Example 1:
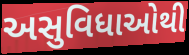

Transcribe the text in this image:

અસુવિધાઓથી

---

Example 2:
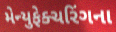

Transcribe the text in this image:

મેન્યુફેક્ચરિંગના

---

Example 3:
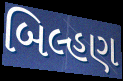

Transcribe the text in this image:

બિલ્હણ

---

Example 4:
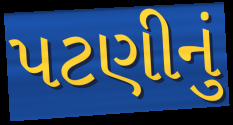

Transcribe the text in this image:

પટણીનું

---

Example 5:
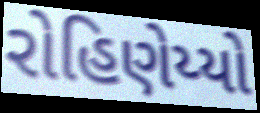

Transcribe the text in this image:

રોહિણેય્યો